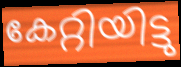
കേറ്റിയിട്ടു